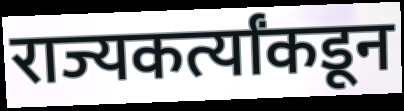
राज्यकर्त्यांकडून